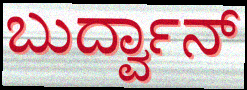
ಬುರ್ದ್ವಾನ್